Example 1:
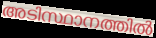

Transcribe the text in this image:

അടിസ്ഥാനത്തിൽ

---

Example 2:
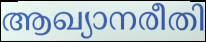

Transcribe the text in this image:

ആഖ്യാനരീതി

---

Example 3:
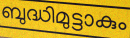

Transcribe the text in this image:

ബുദ്ധിമുട്ടാകും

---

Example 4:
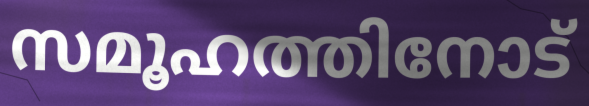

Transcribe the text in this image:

സമൂഹത്തിനോട്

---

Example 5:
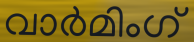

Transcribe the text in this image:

വാർമിംഗ്